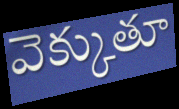
వెక్కుతూ